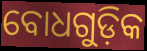
ବୋଧଗୁଡ଼ିକ